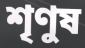
শৃণুষ